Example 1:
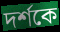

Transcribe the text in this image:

দৰ্শকে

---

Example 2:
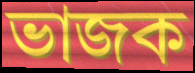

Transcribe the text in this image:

ভাজক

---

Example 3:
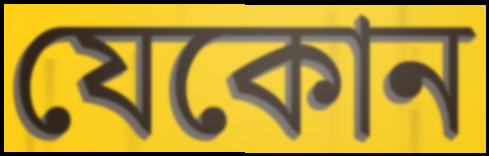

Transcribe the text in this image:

যেকোন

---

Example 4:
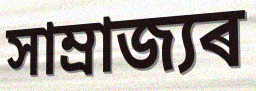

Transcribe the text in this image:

সাম্ৰাজ্যৰ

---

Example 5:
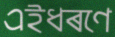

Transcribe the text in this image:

এইধৰণে